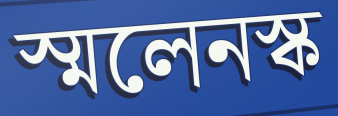
স্মলেনস্ক